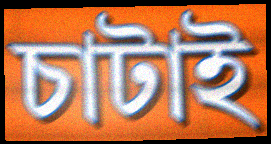
চাটাই